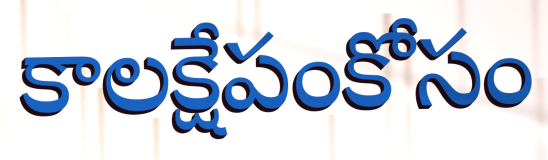
కాలక్షేపంకోసం